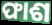
ଫାଶ